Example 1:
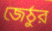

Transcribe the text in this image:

জেঠুর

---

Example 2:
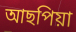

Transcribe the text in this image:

আছপিয়া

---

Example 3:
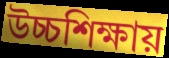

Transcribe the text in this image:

উচ্চশিক্ষায়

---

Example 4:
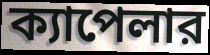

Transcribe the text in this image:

ক্যাপেলার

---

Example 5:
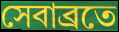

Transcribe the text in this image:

সেবাব্রতে